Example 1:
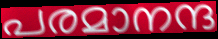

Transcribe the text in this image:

പരമാനന്ദ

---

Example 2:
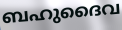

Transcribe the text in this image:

ബഹുദൈവ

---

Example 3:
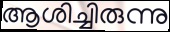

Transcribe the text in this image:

ആശിച്ചിരുന്നു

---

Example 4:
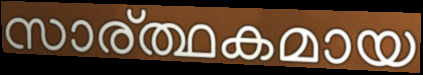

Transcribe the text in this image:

സാര്ത്ഥകമായ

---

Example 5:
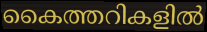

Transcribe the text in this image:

കൈത്തറികളിൽ